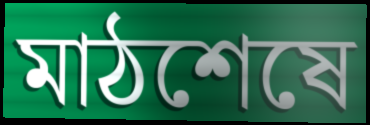
মাঠশেষে